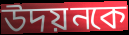
উদয়নকে